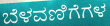
ಬೆಳವಣಿಗೆಗಳ